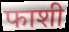
फाशी